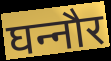
घन्नौर